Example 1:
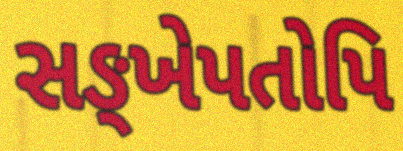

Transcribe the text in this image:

સઙ્ખેપતોપિ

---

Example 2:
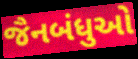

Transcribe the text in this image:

જૈનબંધુઓ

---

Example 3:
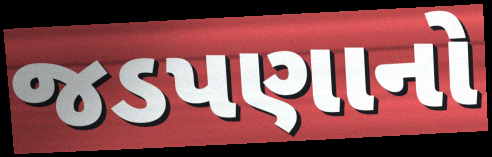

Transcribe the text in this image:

જડપણાનો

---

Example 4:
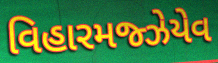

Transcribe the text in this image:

વિહારમજ્ઝેયેવ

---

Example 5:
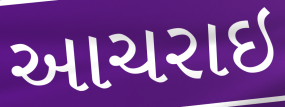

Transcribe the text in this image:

આચરાઇ